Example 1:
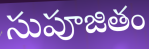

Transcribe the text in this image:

సుపూజితం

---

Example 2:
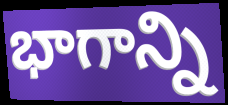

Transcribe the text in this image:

భాగాన్ని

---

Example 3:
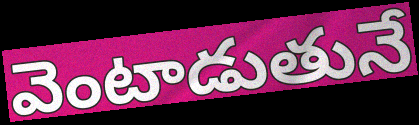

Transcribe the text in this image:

వెంటాడుతునే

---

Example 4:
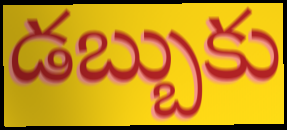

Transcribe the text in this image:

డబ్బుకు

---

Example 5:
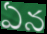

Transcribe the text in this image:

ఏన